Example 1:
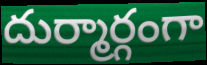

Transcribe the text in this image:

దుర్మార్గంగా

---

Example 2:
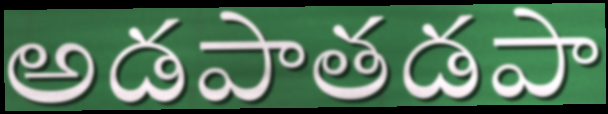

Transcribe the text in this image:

అడపాతడపా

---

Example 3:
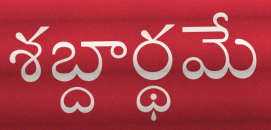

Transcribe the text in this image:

శబ్దార్థమే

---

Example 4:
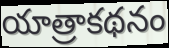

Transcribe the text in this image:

యాత్రాకథనం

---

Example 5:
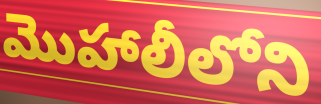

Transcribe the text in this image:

మొహాలీలోని